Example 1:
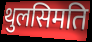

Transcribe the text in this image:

थुलसिमति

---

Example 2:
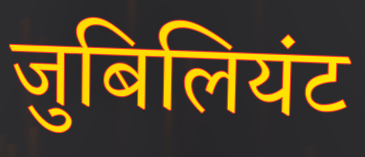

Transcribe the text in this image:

जुबिलियंट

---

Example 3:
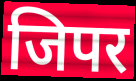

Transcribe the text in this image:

जिपर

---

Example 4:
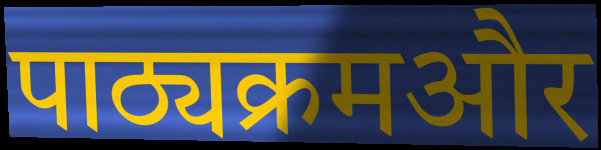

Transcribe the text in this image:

पाठ्यक्रमऔर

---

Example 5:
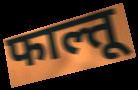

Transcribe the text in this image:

फाल्तू